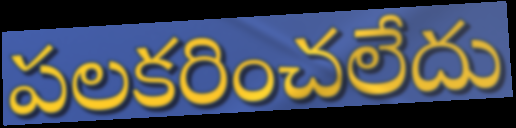
పలకరించలేదు